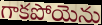
గాకపోయెను